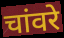
चांवरे